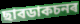
ছাবডাকচনৰ